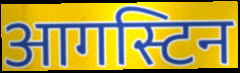
आगस्टिन